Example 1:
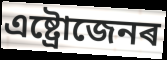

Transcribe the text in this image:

এষ্ট্ৰোজেনৰ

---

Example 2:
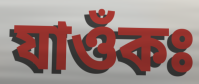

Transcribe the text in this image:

যাওঁকঃ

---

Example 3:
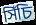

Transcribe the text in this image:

সিঁচি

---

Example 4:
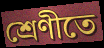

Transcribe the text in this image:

শ্ৰেণীতে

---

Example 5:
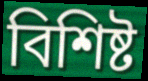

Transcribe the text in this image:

বিশিষ্ট